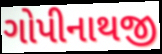
ગોપીનાથજી